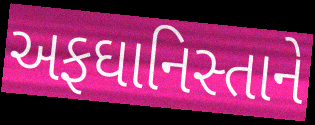
અફઘાનિસ્તાને